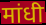
मांधी